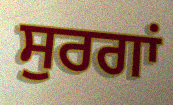
ਸੁਰਗਾਂ